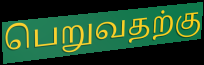
பெறுவதற்கு